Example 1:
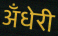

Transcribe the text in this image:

अँधेरी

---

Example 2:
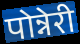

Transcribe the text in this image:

पोन्नेरी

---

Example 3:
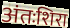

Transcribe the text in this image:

अंतःशिरा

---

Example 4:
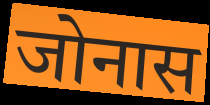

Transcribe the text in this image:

जोनास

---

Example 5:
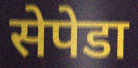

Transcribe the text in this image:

सेपेडा